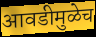
आवडीमुळेच